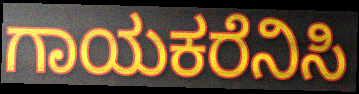
ಗಾಯಕರೆನಿಸಿ